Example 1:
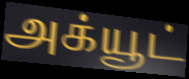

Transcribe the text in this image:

அக்யூட்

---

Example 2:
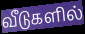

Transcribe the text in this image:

வீடுகளில்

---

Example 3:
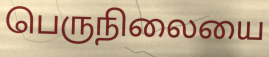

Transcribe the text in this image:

பெருநிலையை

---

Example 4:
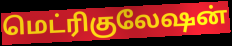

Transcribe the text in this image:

மெட்ரிகுலேஷன்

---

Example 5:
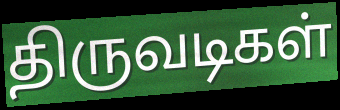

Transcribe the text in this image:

திருவடிகள்